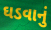
ઘડવાનું